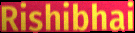
Rishibhai